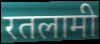
रतलामी